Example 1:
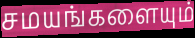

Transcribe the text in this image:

சமயங்களையும்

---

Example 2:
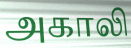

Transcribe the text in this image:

அகாலி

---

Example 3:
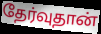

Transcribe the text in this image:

தேர்வுதான்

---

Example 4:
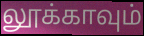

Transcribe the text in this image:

லூக்காவும்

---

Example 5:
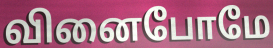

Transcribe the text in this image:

வினைபோமே